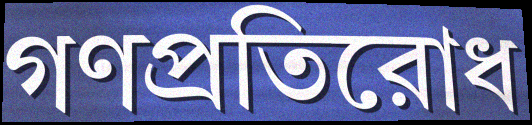
গণপ্রতিরোধ